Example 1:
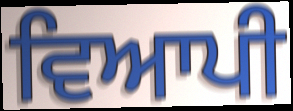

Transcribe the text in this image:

ਵਿਆਪੀ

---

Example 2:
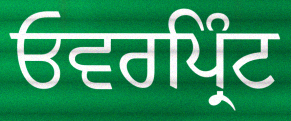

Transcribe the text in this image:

ਓਵਰਪ੍ਰਿੰਟ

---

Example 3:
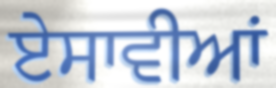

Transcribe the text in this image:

ਏਸਾਵੀਆਂ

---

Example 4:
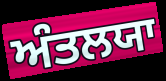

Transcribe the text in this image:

ਅੰਤਲਯਾ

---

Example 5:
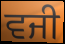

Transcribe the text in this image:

ਵਜੀ